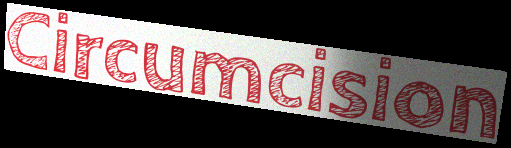
Circumcision